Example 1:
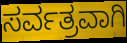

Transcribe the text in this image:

ಸರ್ವತ್ರವಾಗಿ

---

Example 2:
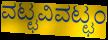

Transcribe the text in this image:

ವಟ್ಟವಿವಟ್ಟಂ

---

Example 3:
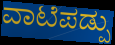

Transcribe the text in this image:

ವಾಟೆಪಡ್ಪು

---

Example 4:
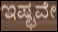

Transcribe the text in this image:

ಇಷ್ಟವೇ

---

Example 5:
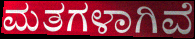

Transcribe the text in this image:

ಮತಗಳಾಗಿವೆ